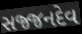
સજ્જનદેવ